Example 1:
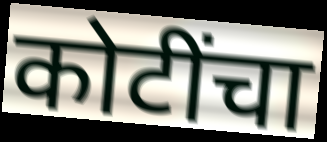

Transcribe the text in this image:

कोटींचा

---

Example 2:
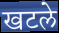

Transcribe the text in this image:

खटले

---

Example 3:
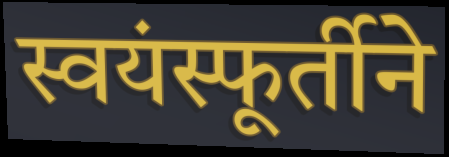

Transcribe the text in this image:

स्वयंस्फूर्तीने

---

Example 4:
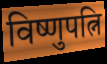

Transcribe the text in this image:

विष्णुपत्नि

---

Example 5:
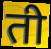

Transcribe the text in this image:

ती